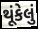
થૂંકેલું